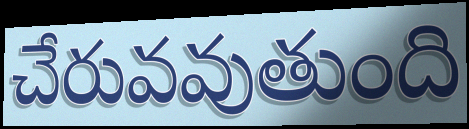
చేరువవుతుంది